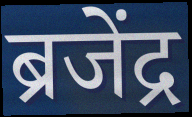
ब्रजेंद्र